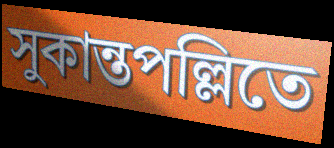
সুকান্তপল্লিতে